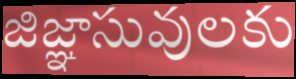
జిజ్ఞాసువులకు